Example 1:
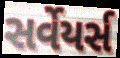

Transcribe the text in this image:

સર્વેયર્સ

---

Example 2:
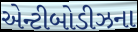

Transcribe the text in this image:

એન્ટીબોડીઝના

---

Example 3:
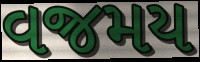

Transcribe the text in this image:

વજ્રમય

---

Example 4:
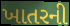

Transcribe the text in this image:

ખાતરની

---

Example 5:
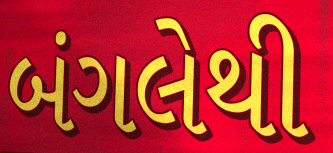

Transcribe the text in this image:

બંગલેથી